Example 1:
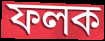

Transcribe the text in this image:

ফলক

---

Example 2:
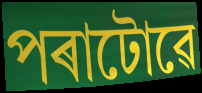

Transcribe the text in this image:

পৰাটোৱে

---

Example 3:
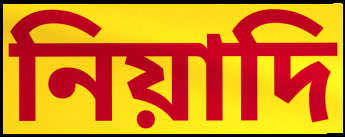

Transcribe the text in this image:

নিয়াদি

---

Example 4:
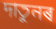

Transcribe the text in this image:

দাতুনৰ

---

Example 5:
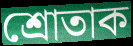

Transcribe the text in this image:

শ্ৰোতাক